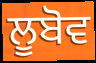
ਲੂਬੋਵ